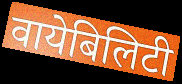
वायेबिलिटी